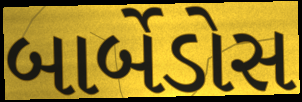
બાર્બેડોસ